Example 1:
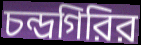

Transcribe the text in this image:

চন্দ্রগিরির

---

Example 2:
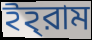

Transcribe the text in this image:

ইহ্‌রাম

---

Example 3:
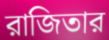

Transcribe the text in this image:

রাজিতার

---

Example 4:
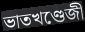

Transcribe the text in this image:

ভাতখণ্ডেজী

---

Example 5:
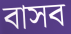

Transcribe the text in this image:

বাসব